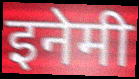
इनेमी